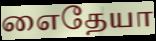
எைதேயா